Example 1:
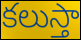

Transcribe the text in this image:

కలుస్తా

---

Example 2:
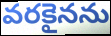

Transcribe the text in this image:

వరకైనను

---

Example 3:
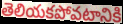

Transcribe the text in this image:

తెలియకపోవటానికి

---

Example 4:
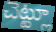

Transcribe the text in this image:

చెట్ట్లూ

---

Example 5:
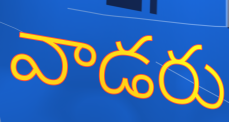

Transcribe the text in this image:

వాడరు